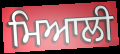
ਮਿਆਲੀ